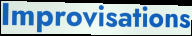
Improvisations